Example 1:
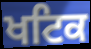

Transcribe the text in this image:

ਖਟਿਕ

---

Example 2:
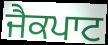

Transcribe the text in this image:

ਜੈਕਪਾਟ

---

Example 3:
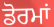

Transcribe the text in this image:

ਡੋਰਮਾਂ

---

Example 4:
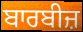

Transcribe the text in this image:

ਬਾਰਬੀਜ਼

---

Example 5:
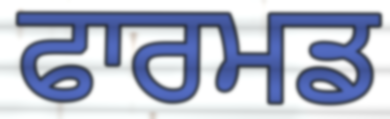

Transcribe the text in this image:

ਫਾਰਮਡ